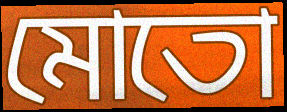
মোতো